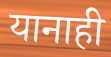
यानाही